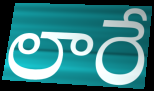
లారే